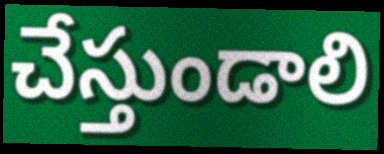
చేస్తుండాలి